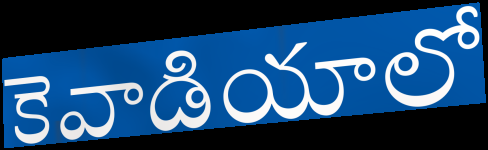
కెవాడియాలో